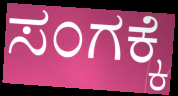
ಸಂಗಕ್ಕೆ